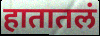
हातातलं